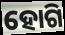
ହୋଗି